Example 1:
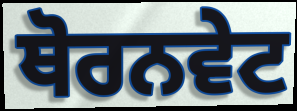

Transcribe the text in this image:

ਥੋਰਨਵੇਟ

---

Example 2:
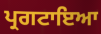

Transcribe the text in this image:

ਪ੍ਰਗਟਾਇਆ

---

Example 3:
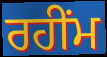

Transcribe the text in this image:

ਰਹੀਂਮ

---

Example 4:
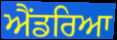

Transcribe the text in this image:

ਐਂਡਰਿਆ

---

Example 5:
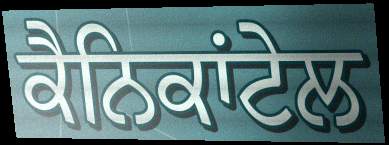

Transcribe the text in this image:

ਕੈਨਿਕਾਂਟੇਲ